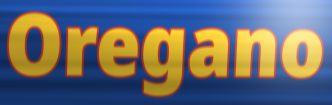
Oregano